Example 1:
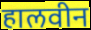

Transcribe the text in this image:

हालवीन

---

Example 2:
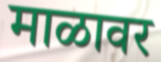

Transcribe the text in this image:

माळावर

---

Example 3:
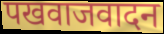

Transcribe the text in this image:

पखवाजवादन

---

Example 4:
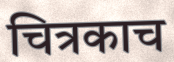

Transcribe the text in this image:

चित्रकाच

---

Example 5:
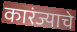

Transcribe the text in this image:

कारंज्याचे